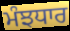
ਮੰਝਧਾਰ